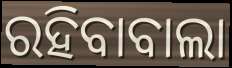
ରହିବାବାଲା